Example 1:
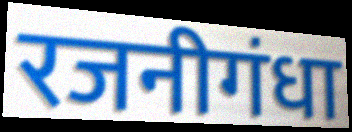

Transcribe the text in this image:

रजनीगंधा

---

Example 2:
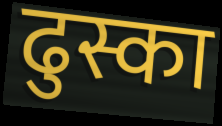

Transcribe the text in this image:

ढुस्का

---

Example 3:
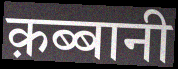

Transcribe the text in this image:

क़ब्बानी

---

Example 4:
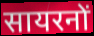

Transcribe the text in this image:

सायरनों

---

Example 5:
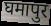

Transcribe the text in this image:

घमापुर